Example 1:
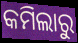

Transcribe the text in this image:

କମିଲାରୁ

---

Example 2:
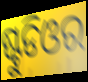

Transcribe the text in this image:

ଷ୍ଟୁଡିଓର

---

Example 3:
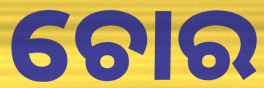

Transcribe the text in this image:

ଚୋର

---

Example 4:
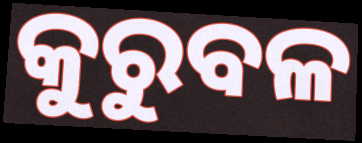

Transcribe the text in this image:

କୁରୁବଳ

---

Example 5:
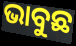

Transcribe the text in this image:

ଭାବୁଛ